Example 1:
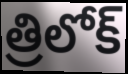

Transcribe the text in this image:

త్రిలోక్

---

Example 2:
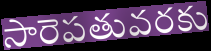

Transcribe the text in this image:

సారెపతువరకు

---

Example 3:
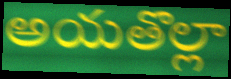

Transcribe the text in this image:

అయతొల్లా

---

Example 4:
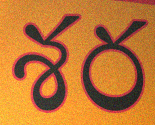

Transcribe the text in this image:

శర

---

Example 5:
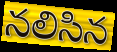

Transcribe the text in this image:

నలిసిన